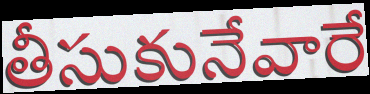
తీసుకునేవారే